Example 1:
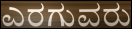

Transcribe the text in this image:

ಎರಗುವರು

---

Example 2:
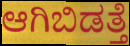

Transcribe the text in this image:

ಆಗಿಬಿಡತ್ತೆ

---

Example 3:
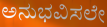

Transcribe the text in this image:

ಅನುಭವಿಸಲೇ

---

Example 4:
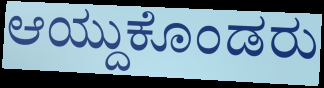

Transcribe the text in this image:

ಆಯ್ದುಕೊಂಡರು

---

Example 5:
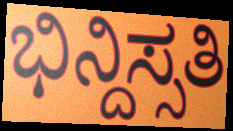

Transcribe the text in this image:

ಭಿನ್ದಿಸ್ಸತಿ